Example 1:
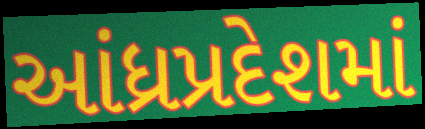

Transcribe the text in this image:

આંધ્રપ્રદેશમાં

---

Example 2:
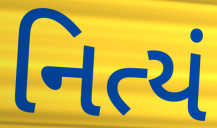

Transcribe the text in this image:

નિત્યં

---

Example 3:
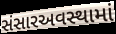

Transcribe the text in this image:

સંસારઅવસ્થામાં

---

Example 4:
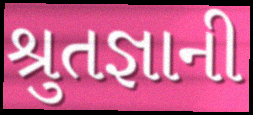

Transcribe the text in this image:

શ્રુતજ્ઞાની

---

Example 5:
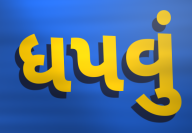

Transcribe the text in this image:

ધપવું